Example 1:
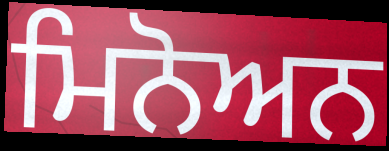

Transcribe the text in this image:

ਮਿਨੋਅਨ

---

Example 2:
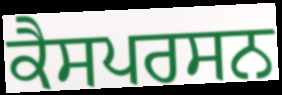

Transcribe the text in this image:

ਕੈਸਪਰਸਨ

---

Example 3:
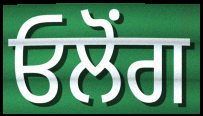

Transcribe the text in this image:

ਓਲੋਂਗ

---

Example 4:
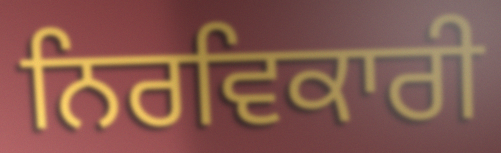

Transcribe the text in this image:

ਨਿਰਵਿਕਾਰੀ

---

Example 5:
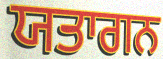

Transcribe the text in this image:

ਯਤਾਗਨ